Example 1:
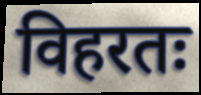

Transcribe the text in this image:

विहरतः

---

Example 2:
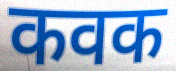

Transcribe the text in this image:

कवक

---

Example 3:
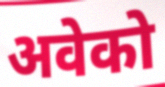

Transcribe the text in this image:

अवेको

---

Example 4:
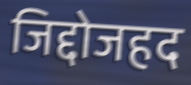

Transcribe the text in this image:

जिद्दोजहद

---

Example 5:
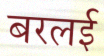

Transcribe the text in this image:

बरलई